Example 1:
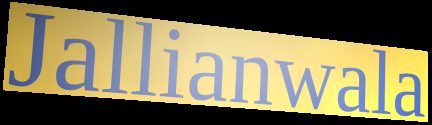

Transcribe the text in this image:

Jallianwala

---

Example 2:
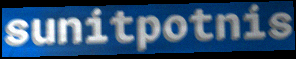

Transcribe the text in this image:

sunitpotnis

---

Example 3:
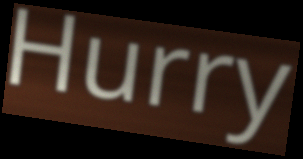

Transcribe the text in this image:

Hurry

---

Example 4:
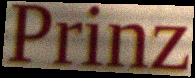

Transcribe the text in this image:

Prinz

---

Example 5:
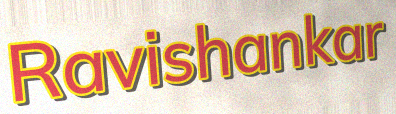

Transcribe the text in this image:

Ravishankar